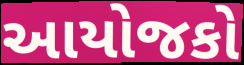
આયોજકો